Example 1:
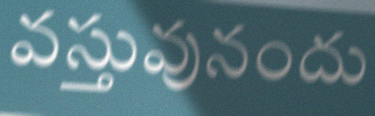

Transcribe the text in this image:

వస్తువునందు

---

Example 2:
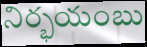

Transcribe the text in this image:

నిర్భయంబు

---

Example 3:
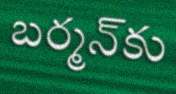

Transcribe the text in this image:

బర్మన్‌కు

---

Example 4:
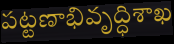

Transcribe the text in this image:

పట్టణాభివృద్ధిశాఖ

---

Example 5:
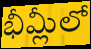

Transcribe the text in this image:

భీమ్లీలో